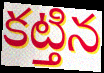
కట్తిన